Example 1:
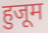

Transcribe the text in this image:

हुजूम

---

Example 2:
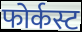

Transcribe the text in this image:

फोर्कस्ट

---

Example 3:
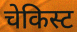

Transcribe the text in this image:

चेकिस्ट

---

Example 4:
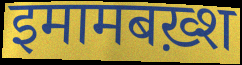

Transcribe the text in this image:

इमामबख़्श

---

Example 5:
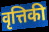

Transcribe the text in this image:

वृत्तिकी